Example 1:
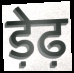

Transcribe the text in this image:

ड़ेढ़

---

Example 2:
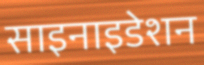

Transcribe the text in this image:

साइनाइडेशन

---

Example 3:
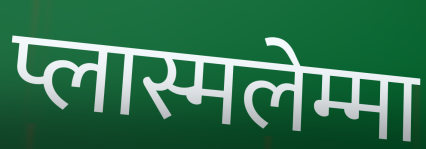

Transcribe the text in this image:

प्लास्मलेम्मा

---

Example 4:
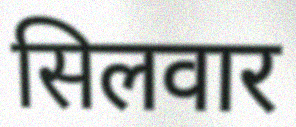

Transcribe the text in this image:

सिलवार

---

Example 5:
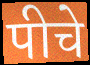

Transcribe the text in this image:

पीचे